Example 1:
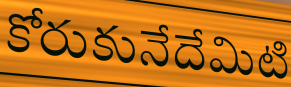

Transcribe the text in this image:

కోరుకునేదేమిటి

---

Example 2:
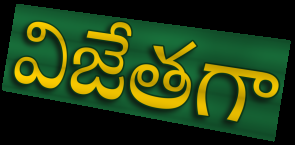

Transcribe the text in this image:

విజేతగా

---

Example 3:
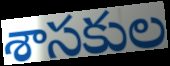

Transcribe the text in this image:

శాసకుల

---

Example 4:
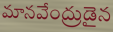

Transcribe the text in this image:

మానవేంద్రుడైన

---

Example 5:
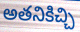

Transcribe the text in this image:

అతనికిచ్చి